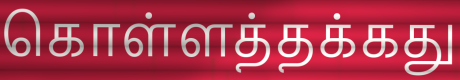
கொள்ளத்தக்கது